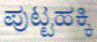
ಪುಟ್ಟಹಕ್ಕಿ